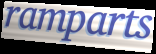
ramparts